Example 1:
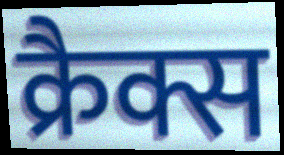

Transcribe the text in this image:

क्रैक्स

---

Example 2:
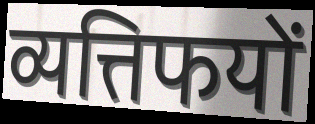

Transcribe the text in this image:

व्यत्तिफयों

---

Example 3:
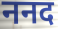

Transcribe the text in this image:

ननद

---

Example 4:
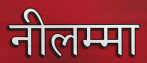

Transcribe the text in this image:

नीलम्मा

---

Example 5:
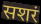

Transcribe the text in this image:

सशरं